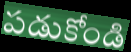
పడుకోండి